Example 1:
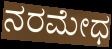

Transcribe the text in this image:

ನರಮೇಧ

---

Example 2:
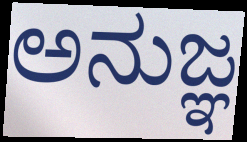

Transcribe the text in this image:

ಅನುಜ್ಞ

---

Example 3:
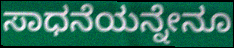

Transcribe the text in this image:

ಸಾಧನೆಯನ್ನೇನೂ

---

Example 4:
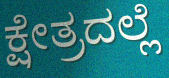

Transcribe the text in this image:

ಕ್ಷೇತ್ರದಲ್ಲೆ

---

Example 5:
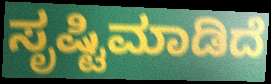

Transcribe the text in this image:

ಸೃಷ್ಟಿಮಾಡಿದೆ